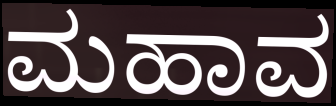
ಮಹಾವ